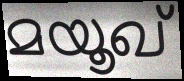
മയൂഖ്